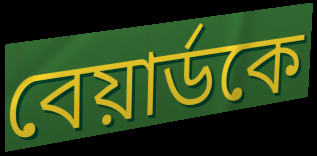
বেয়ার্ডকে